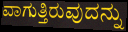
ವಾಗುತ್ತಿರುವುದನ್ನು